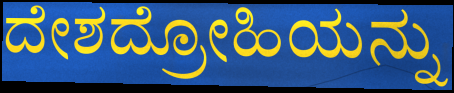
ದೇಶದ್ರೋಹಿಯನ್ನು